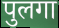
पुलगा